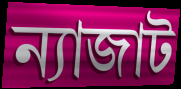
ন্যাজাট